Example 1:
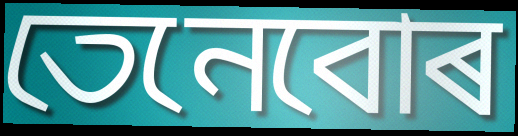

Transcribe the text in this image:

তেনেবোৰ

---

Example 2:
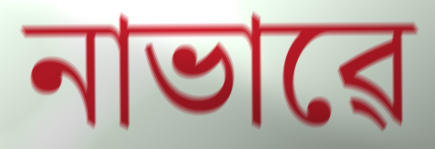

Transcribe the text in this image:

নাভাৱে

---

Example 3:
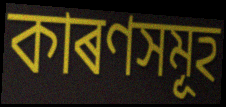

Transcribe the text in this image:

কাৰণসমূহ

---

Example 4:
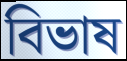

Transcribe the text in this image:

বিভাষ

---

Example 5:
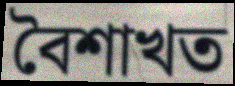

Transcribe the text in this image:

বৈশাখত